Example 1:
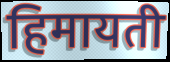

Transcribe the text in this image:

हिमायती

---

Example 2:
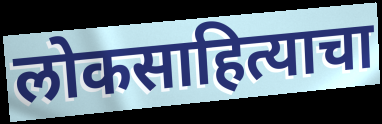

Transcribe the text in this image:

लोकसाहित्याचा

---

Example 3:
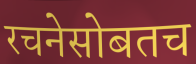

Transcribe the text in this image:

रचनेसोबतच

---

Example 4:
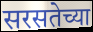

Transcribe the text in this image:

सरसतेच्या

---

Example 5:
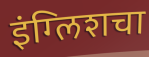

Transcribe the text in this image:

इंग्लिशचा